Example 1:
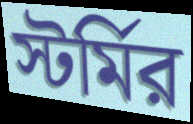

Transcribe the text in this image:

স্টর্মির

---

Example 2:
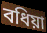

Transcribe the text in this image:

বধিয়া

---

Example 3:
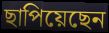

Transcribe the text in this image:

ছাপিয়েছেন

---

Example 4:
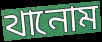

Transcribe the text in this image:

থানোম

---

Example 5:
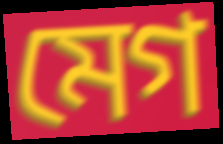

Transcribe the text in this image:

মেগ